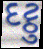
દટ્ઠુ